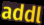
addl